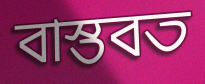
বাস্তবত